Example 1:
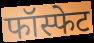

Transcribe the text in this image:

फॉस्फेट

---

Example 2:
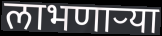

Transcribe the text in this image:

लाभणाऱ्या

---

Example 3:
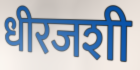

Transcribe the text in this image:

धीरजशी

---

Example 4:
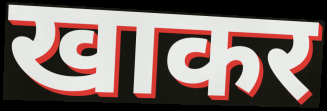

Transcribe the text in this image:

खाकर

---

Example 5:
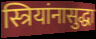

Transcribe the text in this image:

स्त्रियांनासुद्धा